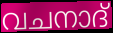
വചനാദ്